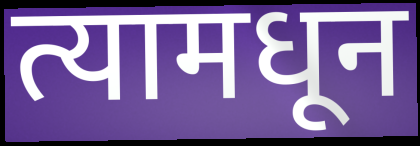
त्यामधून